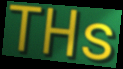
THs